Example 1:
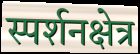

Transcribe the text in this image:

स्पर्शनक्षेत्र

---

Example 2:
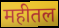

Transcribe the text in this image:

महीतल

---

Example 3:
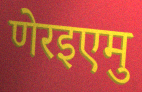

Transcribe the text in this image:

णेरइएमु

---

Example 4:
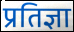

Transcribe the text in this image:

प्रतिज्ञा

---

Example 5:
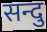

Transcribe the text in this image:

सन्दु